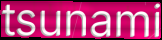
tsunami